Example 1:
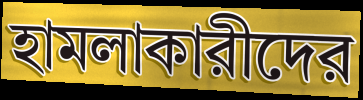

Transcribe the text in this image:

হামলাকারীদের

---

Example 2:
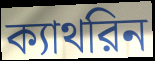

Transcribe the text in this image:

ক্যাথরিন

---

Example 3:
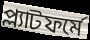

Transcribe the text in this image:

প্ল্যাটফর্মে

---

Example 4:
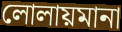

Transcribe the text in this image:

লোলায়মানা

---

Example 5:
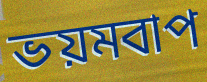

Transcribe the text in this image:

ভয়মবাপ